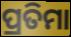
ପ୍ରତିମା